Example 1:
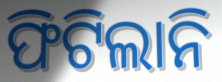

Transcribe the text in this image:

ଫିଟିଲାନି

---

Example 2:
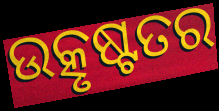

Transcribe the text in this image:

ଉତ୍କୃଷ୍ଟତର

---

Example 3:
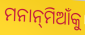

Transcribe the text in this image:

ମନାନ୍‌ମିଆଁକୁ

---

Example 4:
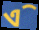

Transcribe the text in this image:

ଏି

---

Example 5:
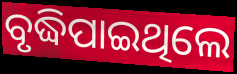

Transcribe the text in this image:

ବୃଦ୍ଧିପାଇଥିଲେ